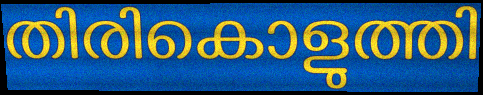
തിരികൊളുത്തി